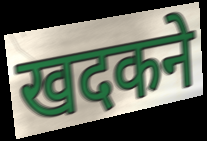
खदकने